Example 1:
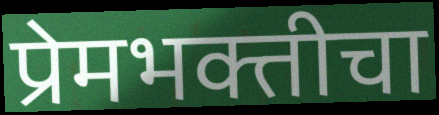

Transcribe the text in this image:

प्रेमभक्तीचा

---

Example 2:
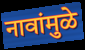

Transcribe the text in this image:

नावांमुळे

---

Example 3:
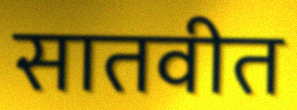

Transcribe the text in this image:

सातवीत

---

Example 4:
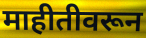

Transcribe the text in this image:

माहीतीवरून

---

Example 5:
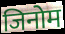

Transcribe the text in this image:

जिनोम